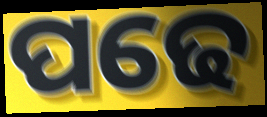
ପଢେ